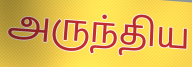
அருந்திய